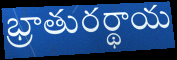
భ్రాతురర్థాయ